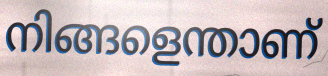
നിങ്ങളെന്താണ്